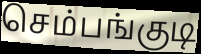
செம்பங்குடி